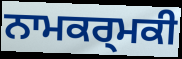
ਨਾਮਕਰ੍ਮਕੀ